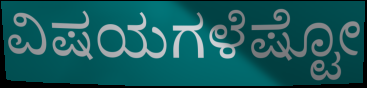
ವಿಷಯಗಳೆಷ್ಟೋ